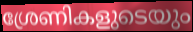
ശ്രേണികളുടെയും